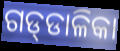
ଗଡ୍‍ଡାଳିକା